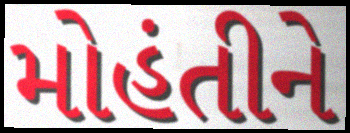
મોહંતીને